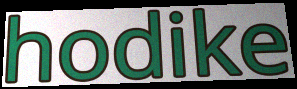
hodike